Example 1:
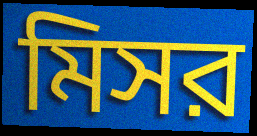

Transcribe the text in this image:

মিসর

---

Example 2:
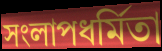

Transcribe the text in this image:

সংলাপধর্মিতা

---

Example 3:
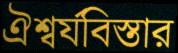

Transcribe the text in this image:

ঐশ্বর্যবিস্তার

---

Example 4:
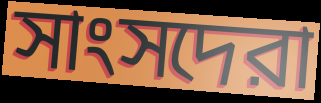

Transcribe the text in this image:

সাংসদেরা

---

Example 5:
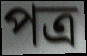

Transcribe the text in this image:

পত্র